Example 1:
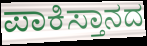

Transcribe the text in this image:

ಪಾಕಿಸ್ತಾನದ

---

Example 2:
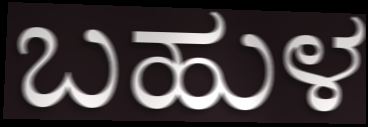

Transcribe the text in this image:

ಬಹುಳ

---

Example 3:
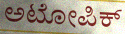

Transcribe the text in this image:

ಅಟೋಪಿಕ್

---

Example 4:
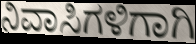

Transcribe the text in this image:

ನಿವಾಸಿಗಳಿಗಾಗಿ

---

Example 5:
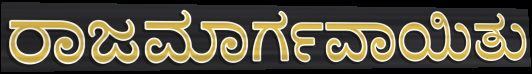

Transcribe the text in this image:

ರಾಜಮಾರ್ಗವಾಯಿತು